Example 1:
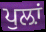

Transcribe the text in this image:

ਪੁਲ਼ਾਂ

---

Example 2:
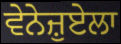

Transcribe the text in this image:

ਵੇਨੇਜ਼ੁਏਲਾ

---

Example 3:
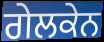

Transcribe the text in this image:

ਗੇਲਕੇਨ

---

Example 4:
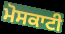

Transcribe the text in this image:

ਮੋਸਕਾਟੀ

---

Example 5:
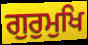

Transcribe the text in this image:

ਗੁਰੁਮੁਖਿ